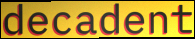
decadent